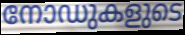
നോഡുകളുടെ